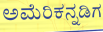
ಅಮೆರಿಕನ್ನಡಿಗ